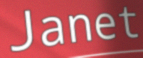
Janet